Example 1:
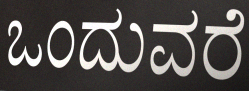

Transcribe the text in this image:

ಒಂದುವರೆ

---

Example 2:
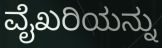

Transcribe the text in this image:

ವೈಖರಿಯನ್ನು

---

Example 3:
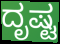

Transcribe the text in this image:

ದೃಷ್ಟ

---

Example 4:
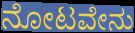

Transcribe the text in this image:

ನೋಟವೇನು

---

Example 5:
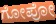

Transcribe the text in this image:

ಗೋಪೋ